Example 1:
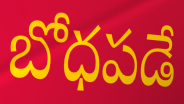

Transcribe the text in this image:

బోధపడే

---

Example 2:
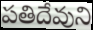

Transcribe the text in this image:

పతిదేవుని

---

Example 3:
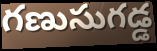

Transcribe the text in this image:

గణుసుగడ్డ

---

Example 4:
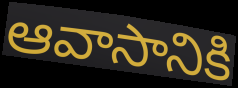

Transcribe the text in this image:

ఆవాసానికి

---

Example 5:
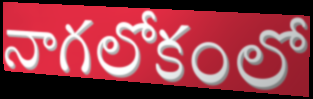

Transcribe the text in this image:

నాగలోకంలో